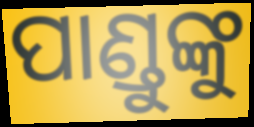
ପାଣ୍ଡୁଙ୍କୁ